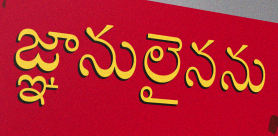
జ్ఞానులైనను